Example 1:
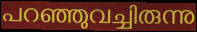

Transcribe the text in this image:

പറഞ്ഞുവച്ചിരുന്നു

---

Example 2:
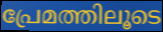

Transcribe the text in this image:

പ്രേമത്തിലൂടെ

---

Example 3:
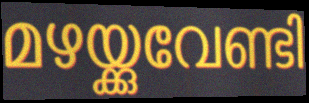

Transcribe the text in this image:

മഴയ്ക്കുവേണ്ടി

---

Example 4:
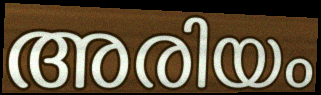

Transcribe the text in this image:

അരിയം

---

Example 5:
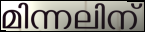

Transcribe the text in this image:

മിന്നലിന്